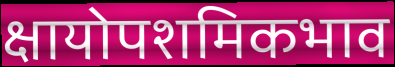
क्षायोपशमिकभाव